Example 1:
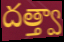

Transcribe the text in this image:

దత్త్వా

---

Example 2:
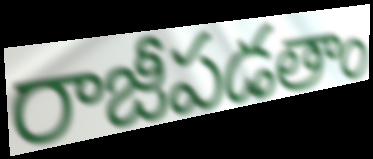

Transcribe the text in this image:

రాజీపడతాం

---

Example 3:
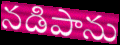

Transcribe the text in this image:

నడిపాను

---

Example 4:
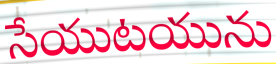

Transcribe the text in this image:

సేయుటయును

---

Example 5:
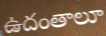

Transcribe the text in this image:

ఉదంతాలూ